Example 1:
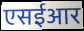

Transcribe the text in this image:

एसईआर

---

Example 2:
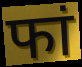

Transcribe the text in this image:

फां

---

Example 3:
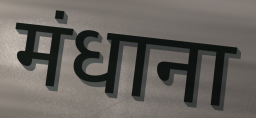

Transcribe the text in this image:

मंधाना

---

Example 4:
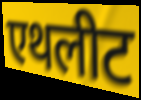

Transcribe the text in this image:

एथलीट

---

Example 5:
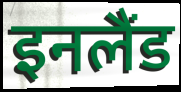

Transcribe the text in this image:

इनलैंड